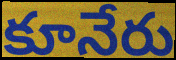
కూనేరు